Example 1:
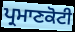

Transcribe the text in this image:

ਪ੍ਰਮਾਣਕੋਟੀ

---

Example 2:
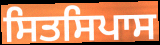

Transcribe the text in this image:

ਸਿਤਸਿਪਾਸ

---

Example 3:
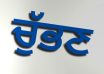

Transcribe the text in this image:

ਚੁੱਭਣ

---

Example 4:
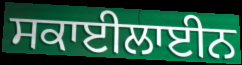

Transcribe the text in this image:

ਸਕਾਈਲਾਈਨ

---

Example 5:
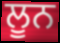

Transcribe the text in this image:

ਲੂਨ